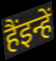
हैंइन्हें